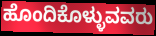
ಹೊಂದಿಕೊಳ್ಳುವವರು